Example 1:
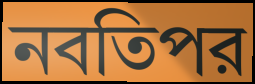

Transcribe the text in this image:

নবতিপর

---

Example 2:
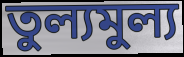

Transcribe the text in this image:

তুল্যমুল্য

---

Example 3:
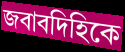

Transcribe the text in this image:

জবাবদিহিকে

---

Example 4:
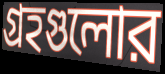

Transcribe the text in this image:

গ্রহগুলোর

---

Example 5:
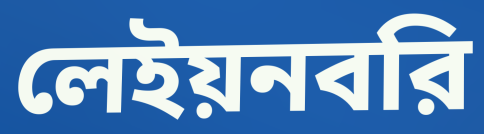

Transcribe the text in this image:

লেইয়নবরি